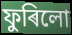
ফুৰিলো